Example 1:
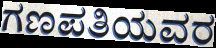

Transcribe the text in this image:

ಗಣಪತಿಯವರ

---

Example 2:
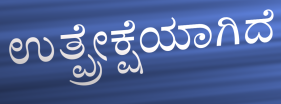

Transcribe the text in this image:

ಉತ್ಪ್ರೇಕ್ಷೆಯಾಗಿದೆ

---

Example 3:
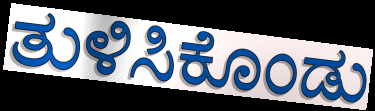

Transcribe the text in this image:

ತುಳಿಸಿಕೊಂಡು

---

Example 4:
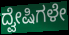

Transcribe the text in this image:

ದ್ವೇಷಿಗಳೇ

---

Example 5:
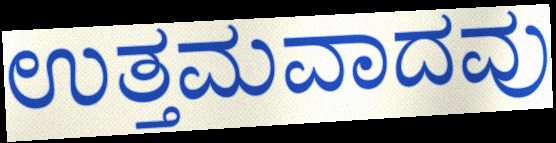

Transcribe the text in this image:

ಉತ್ತಮವಾದವು